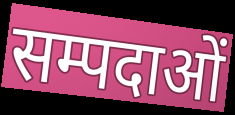
सम्पदाओं